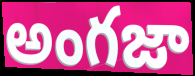
అంగజా